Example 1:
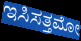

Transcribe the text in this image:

ಇಸಿಸತ್ತಮೋ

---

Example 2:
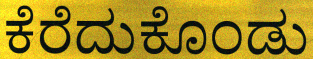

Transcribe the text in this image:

ಕೆರೆದುಕೊಂಡು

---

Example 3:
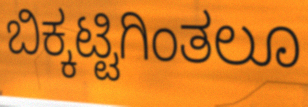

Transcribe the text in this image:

ಬಿಕ್ಕಟ್ಟಿಗಿಂತಲೂ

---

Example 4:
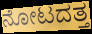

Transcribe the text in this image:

ನೋಟದತ್ತ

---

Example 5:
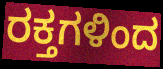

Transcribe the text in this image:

ರಕ್ತಗಳಿಂದ